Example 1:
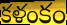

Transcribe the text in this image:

కళంకం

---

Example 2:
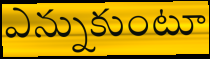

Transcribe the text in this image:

ఎన్నుకుంటూ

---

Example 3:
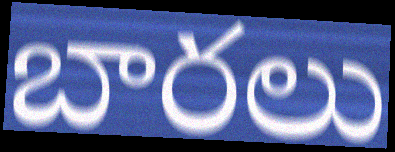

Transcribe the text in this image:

బారలు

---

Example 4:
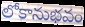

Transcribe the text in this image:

లోకానుభవం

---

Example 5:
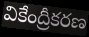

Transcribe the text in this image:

వికేంద్రీకరణ